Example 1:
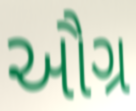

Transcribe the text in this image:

ઔગ્ર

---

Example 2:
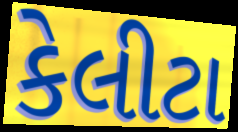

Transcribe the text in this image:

કેલીટા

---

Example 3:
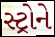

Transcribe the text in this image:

સ્ટ્રોને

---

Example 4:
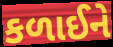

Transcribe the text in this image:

કળાઈને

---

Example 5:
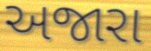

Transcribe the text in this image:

અજારા